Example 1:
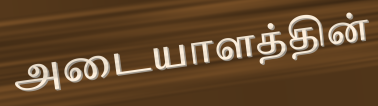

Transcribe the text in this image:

அடையாளத்தின்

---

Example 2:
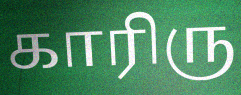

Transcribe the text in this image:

காரிரு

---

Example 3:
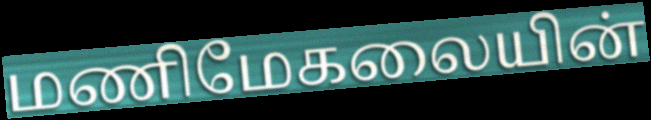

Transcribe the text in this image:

மணிமேகலையின்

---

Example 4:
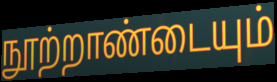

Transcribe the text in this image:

நூற்றாண்டையும்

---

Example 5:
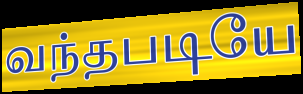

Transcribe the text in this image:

வந்தபடியே